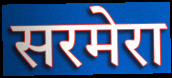
सरमेरा